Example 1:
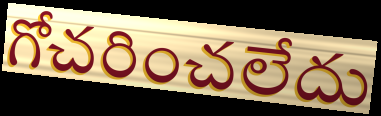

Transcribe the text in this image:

గోచరించలేదు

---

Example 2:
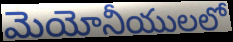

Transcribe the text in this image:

మెయోనీయులలో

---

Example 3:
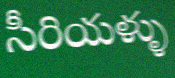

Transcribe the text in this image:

సీరియళ్ళు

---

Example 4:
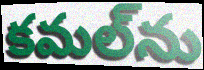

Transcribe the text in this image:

కమల్‌ను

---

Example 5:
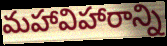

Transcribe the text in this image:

మహావిహారాన్ని